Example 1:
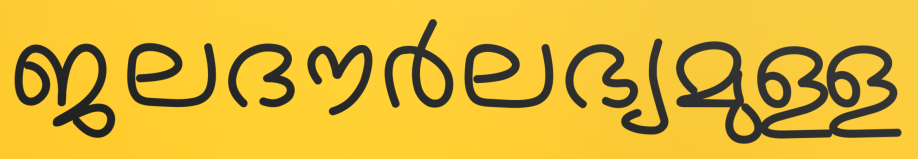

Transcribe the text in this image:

ജലദൗർലഭ്യമുള്ള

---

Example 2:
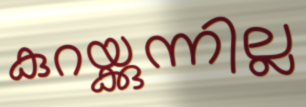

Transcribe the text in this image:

കുറയ്ക്കുന്നില്ല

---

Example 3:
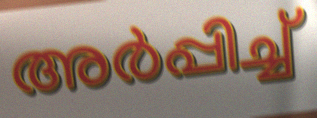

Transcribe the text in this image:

അർപ്പിച്ച്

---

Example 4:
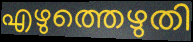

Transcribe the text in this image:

എഴുത്തെഴുതി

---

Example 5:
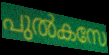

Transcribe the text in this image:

പുൽകസേ